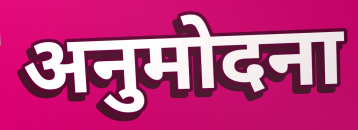
अनुमोदना